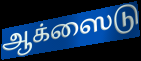
ஆக்ஸைடு